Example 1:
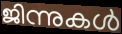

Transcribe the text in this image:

ജിന്നുകൾ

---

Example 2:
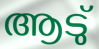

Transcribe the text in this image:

ആടു്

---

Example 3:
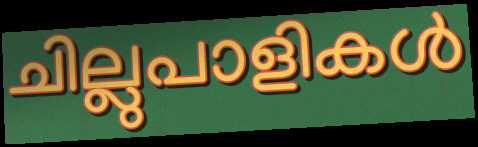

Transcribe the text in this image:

ചില്ലുപാളികൾ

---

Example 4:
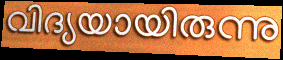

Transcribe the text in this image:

വിദ്യയായിരുന്നു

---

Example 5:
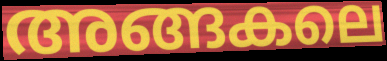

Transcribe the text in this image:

അങ്ങകലെ